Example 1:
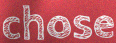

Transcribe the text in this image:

chose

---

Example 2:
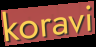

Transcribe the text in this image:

koravi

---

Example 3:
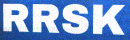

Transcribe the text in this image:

RRSK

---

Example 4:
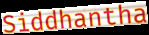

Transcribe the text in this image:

Siddhantha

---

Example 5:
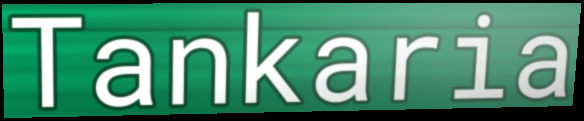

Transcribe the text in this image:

Tankaria